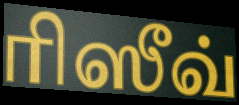
ரிஸீவ்